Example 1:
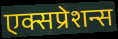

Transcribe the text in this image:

एक्सप्रेशन्स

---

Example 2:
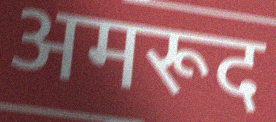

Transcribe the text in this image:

अमरूद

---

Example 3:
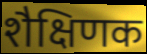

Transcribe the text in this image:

शैक्षिणक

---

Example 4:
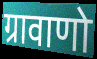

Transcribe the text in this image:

ग्रावाणो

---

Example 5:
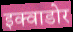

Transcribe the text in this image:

इक्‍वाडोर